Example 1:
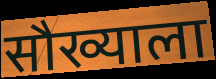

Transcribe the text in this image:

सौख्याला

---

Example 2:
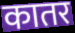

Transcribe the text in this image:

कातर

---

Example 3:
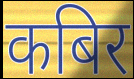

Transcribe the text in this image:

कबिर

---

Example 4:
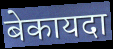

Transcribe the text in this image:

बेकायदा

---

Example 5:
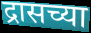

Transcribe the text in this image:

द्रासच्या